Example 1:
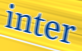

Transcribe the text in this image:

inter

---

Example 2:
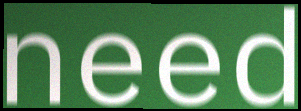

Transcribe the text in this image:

need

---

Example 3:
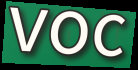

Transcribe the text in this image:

voc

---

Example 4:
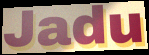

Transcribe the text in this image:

Jadu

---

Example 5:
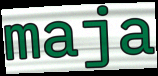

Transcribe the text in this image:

maja